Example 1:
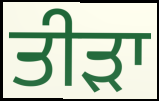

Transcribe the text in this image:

ਤੀੜਾ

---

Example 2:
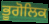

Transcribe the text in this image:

ਭੂਗੋਲਿਕ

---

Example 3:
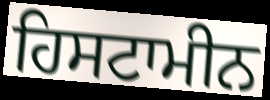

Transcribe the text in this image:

ਹਿਸਟਾਮੀਨ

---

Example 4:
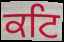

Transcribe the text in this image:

ਕਟਿ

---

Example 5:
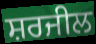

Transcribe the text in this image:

ਸ਼ਰਜੀਲ